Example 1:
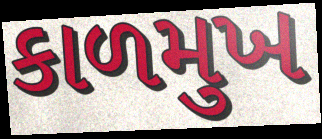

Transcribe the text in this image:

કાળમુખ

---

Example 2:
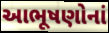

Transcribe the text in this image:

આભૂષણોનાં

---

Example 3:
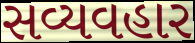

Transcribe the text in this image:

સવ્યવહાર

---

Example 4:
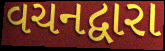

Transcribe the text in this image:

વચનદ્વારા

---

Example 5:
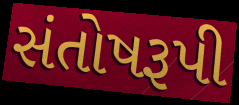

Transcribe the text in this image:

સંતોષરૂપી